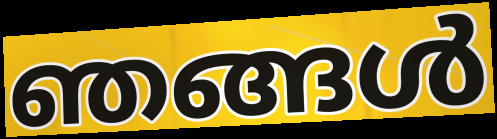
ഞങ്ങൾ